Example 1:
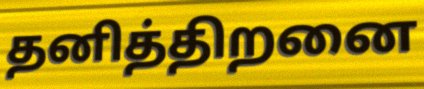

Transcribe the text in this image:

தனித்திறனை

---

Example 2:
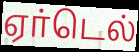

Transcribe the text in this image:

ஏர்டெல்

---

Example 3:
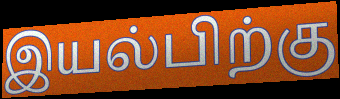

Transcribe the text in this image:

இயல்பிற்கு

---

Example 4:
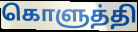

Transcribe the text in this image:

கொளுத்தி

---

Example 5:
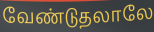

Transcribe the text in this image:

வேண்டுதலாலே